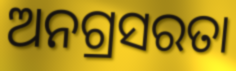
ଅନଗ୍ରସରତା